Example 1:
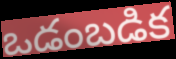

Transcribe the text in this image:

ఒడంబడిక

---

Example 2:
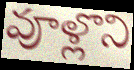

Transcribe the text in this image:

వూళ్లొని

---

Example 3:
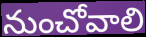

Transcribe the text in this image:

నుంచోవాలి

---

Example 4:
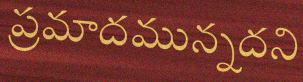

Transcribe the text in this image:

ప్రమాదమున్నదని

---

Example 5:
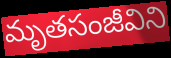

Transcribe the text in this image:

మృతసంజీవిని